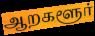
ஆறகளூர்